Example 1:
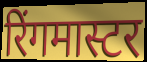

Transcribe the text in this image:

रिंगमास्टर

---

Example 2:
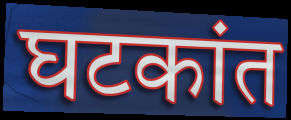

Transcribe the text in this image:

घटकांत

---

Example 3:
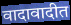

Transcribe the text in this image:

वादावादीत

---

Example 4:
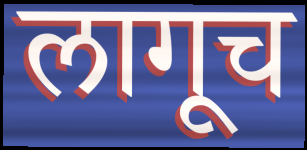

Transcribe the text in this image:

लागूच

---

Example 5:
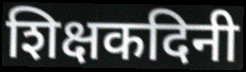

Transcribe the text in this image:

शिक्षकदिनी